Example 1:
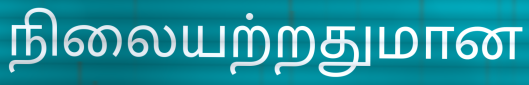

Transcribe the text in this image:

நிலையற்றதுமான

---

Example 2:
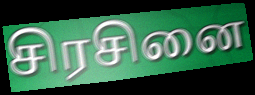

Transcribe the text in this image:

சிரசினை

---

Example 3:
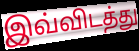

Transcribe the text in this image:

இவ்விடத்து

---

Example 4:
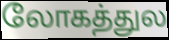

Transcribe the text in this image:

லோகத்துல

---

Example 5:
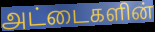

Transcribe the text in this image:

அட்டைகளின்